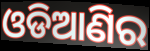
ଓଡିଆଣିର